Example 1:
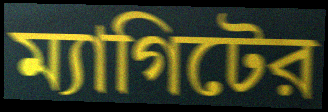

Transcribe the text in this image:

ম্যাগিটের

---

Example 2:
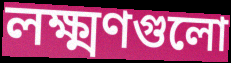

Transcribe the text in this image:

লক্ষ্মণগুলো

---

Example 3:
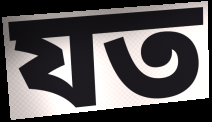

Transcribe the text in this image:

যত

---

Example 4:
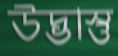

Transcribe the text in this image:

উদ্ভাস্তু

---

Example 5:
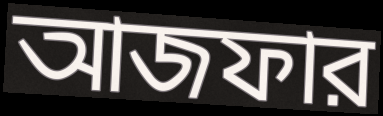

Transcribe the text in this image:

আজফার